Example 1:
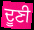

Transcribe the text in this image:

ਦੂਣੀ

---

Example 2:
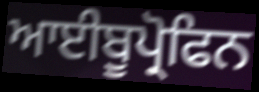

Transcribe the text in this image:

ਆਈਬੂਪ੍ਰੋਫਿਨ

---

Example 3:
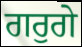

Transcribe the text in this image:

ਗਰੁਗੇ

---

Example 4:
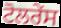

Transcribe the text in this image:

ਟੋਲਰੇਂਸ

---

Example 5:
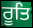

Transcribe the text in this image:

ਰੂਤਿ